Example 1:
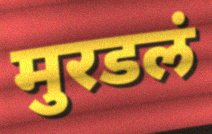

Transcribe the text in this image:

मुरडलं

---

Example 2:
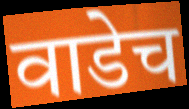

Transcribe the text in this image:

वाडेच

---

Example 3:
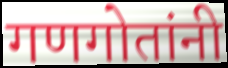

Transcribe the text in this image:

गणगोतांनी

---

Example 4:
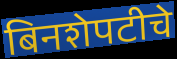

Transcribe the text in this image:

बिनशेपटीचे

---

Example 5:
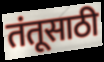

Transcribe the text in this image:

तंतूसाठी